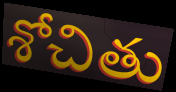
శోచితు